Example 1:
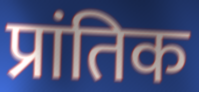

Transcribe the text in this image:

प्रांतिक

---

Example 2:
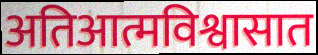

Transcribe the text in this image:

अतिआत्मविश्वासात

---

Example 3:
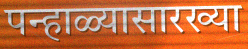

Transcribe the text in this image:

पन्हाळ्यासारख्या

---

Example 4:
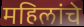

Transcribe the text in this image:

महिलांचे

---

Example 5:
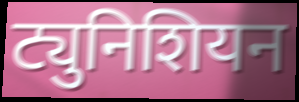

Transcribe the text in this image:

ट्युनिशियन